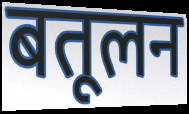
बतूलन